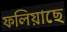
ফলিয়াছে